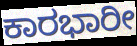
ಕಾರಭಾರೀ